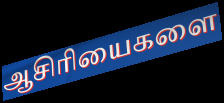
ஆசிரியைகளை